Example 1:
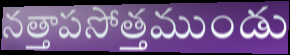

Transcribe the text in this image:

నత్తాపసోత్తముండు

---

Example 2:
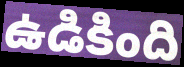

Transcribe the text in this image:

ఉడికింది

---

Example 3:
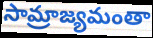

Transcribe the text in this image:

సామ్రాజ్యమంతా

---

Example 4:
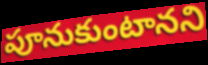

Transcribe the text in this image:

పూనుకుంటానని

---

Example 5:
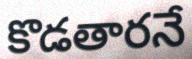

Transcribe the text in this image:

కొడతారనే